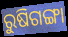
ରୁଷିଗଙ୍ଗା